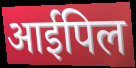
आईपिल